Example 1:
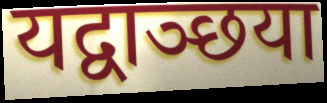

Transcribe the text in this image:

यद्वाञ्छया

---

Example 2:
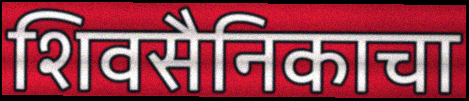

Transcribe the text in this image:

शिवसैनिकाचा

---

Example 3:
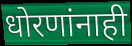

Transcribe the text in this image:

धोरणांनाही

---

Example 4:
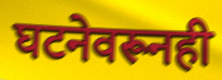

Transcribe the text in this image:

घटनेवरूनही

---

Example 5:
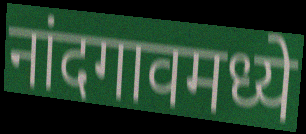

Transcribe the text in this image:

नांदगावमध्ये